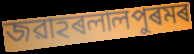
জৱাহৰলালপুৰমৰ